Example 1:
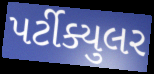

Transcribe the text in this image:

પર્ટીક્યુલર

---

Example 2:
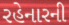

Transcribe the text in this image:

રહેનારની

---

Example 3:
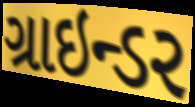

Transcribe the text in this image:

ગ્રાઇન્ડર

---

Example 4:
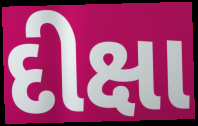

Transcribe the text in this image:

દીક્ષા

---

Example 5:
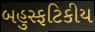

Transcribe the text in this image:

બહુસ્ફટિકીય